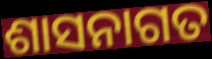
ଶାସନାଗତ